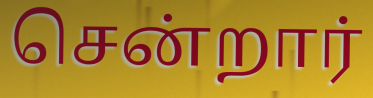
சென்றார்